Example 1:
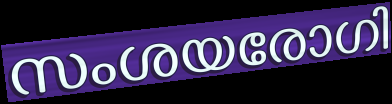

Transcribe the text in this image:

സംശയരോഗി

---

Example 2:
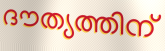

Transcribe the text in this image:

ദൗത്യത്തിന്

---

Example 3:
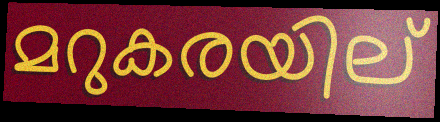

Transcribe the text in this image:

മറുകരയില്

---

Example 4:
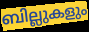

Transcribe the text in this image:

ബില്ലുകളും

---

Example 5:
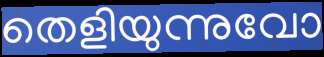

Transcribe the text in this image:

തെളിയുന്നുവോ